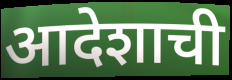
आदेशाची